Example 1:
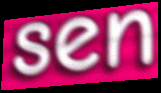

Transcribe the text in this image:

sen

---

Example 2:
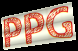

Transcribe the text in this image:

PPG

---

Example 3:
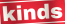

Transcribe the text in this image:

kinds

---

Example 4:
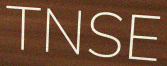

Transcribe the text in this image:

TNSE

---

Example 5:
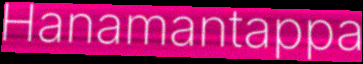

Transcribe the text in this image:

Hanamantappa